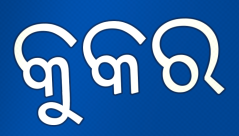
କୁକର